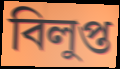
বিলুপ্ত